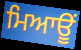
ਮਿਆਊਂ